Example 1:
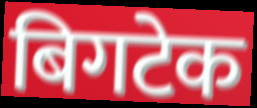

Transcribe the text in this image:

बिगटेक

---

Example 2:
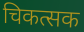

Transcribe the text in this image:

चिकत्सक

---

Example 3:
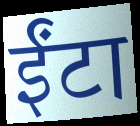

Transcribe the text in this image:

ईंटा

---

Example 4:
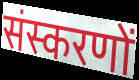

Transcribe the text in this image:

संस्करणों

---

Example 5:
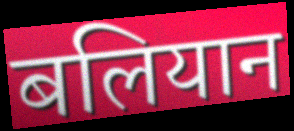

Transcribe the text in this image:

बलियान